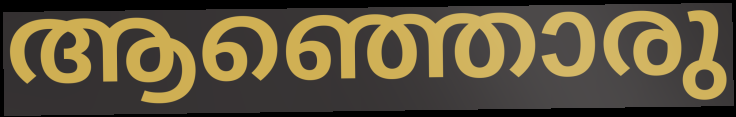
ആഞ്ഞൊരു